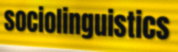
sociolinguistics